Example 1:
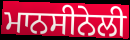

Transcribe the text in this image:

ਮਾਨਸੀਨੇਲੀ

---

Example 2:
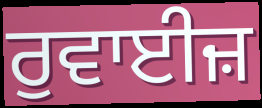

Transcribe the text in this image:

ਰੁਵਾਈਜ਼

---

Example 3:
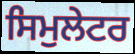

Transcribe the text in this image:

ਸਿਮੁਲੇਟਰ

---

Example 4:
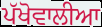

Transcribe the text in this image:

ਪੱਖੋਵਾਲੀਆ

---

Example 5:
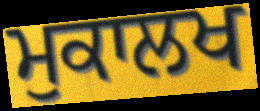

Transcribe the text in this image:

ਮੁਕਾਲਖ